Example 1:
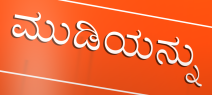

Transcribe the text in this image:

ಮುಡಿಯನ್ನು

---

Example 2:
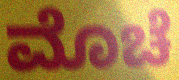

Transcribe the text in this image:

ಮೊಚೆ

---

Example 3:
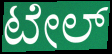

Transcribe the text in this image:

ಟೇಲ್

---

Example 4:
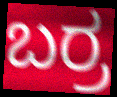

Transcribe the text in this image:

ಬರ್ರ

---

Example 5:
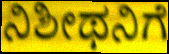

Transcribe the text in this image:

ನಿಶೀಥನಿಗೆ